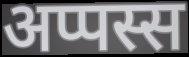
अप्पस्स